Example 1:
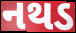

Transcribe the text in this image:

નથડ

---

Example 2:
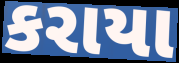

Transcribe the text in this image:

કરાયા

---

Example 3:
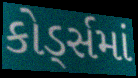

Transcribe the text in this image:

કોર્ડ્સમાં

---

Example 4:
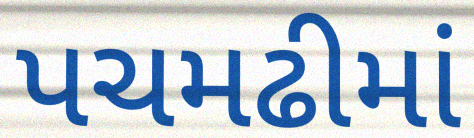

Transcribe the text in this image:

પચમઢીમાં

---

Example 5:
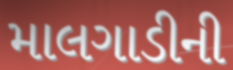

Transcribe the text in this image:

માલગાડીની